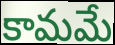
కామమే